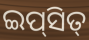
ଇପ୍‌ସିତ୍